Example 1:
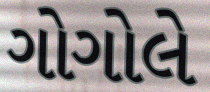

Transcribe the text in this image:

ગોગોલે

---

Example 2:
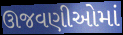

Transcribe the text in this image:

ઊજવણીઓમાં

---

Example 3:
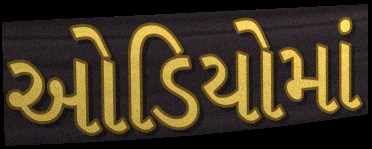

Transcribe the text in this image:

ઓડિયોમાં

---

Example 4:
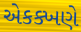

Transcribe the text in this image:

એકક્ખણે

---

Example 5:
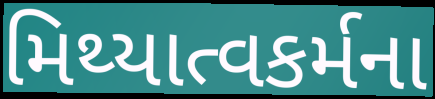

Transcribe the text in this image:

મિથ્યાત્વકર્મના